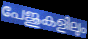
പേജുകളിലും